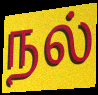
நல்